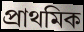
প্ৰাথমিক